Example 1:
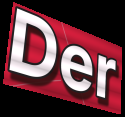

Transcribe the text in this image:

Der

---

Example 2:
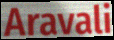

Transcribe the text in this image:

Aravali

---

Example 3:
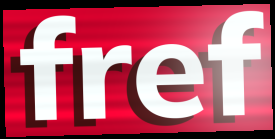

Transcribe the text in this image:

fref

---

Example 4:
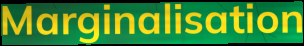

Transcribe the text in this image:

Marginalisation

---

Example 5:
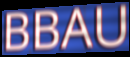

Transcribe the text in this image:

BBAU